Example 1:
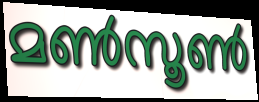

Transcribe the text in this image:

മൺസൂൺ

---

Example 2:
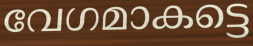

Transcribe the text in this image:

വേഗമാകട്ടെ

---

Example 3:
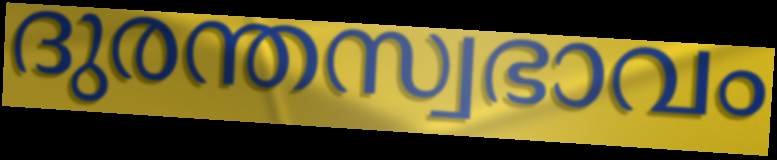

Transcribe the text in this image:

ദുരന്തസ്വഭാവം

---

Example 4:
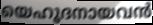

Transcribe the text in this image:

യെഹൂദനായവൻ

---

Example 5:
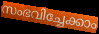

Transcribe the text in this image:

സംഭവിച്ചേക്കാം